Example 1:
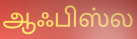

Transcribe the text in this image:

ஆஃபிஸ்ல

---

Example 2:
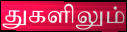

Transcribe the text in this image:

துகளிலும்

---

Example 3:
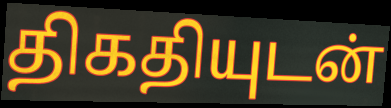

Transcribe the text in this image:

திகதியுடன்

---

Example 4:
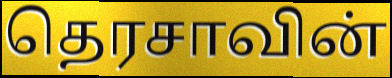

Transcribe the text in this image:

தெரசாவின்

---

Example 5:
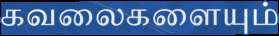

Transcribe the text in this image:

கவலைகளையும்